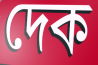
দেক